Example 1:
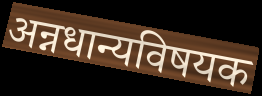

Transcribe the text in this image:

अन्नधान्यविषयक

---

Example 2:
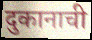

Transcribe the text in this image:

दुकानाची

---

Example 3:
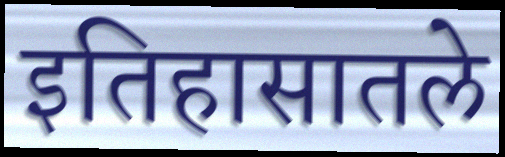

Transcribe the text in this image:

इतिहासातले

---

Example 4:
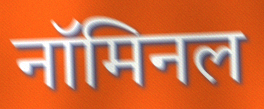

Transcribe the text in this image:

नॉमिनल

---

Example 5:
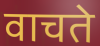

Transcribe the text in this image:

वाचते